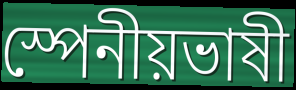
স্পেনীয়ভাষী